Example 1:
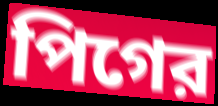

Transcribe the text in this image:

পিগের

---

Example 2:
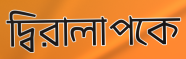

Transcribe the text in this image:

দ্বিরালাপকে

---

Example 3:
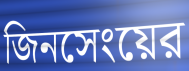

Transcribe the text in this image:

জিনসেংয়ের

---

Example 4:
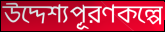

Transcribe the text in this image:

উদ্দেশ্যপূরণকল্পে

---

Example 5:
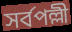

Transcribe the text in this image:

সর্বপল্লী